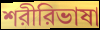
শরীরিভাষা